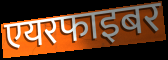
एयरफाइबर